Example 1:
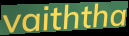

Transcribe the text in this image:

vaiththa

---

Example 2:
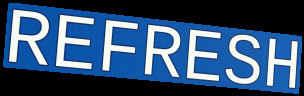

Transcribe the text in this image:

REFRESH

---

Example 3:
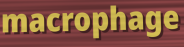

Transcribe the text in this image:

macrophage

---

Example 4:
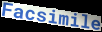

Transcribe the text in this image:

Facsimile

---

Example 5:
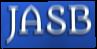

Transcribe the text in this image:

JASB